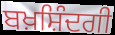
ਬਖ਼ਸ਼ਿੰਦਗੀ